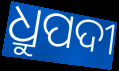
ଧ୍ରୁପଦୀ